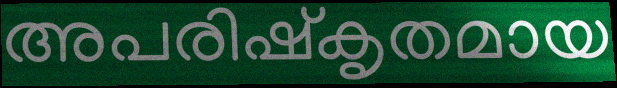
അപരിഷ്കൃതമായ